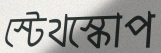
স্টেথস্কোপ